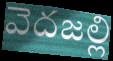
వెదజల్లి